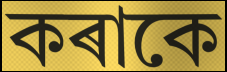
কৰাকে